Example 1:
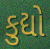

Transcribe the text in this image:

કુદ્યો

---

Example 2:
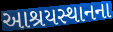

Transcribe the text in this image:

આશ્રયસ્થાનના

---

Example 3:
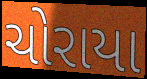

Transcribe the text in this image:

ચોરાયા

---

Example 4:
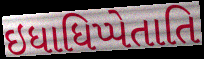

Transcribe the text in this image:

ઇધાધિપ્પેતાતિ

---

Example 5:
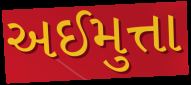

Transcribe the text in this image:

અઈમુત્તા